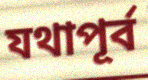
যথাপূর্ব